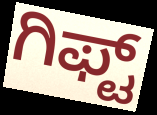
ಗಿಫ್ಟ್